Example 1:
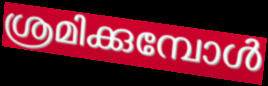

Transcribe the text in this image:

ശ്രമിക്കുമ്പോൾ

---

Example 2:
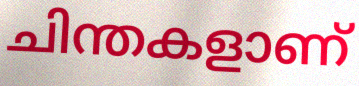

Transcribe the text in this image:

ചിന്തകളാണ്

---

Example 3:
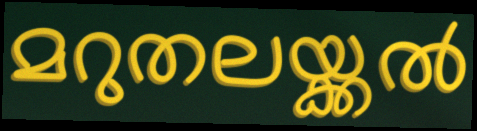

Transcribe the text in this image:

മറുതലയ്ക്കൽ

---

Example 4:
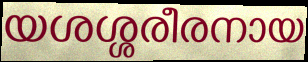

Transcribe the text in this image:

യശശ്ശരീരനായ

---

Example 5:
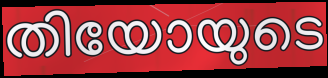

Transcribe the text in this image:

തിയോയുടെ